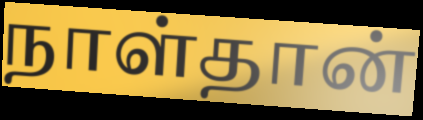
நாள்தான்